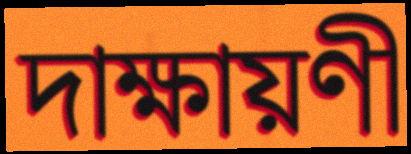
দাক্ষায়ণী